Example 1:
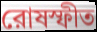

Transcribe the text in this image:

রোষস্ফীত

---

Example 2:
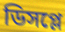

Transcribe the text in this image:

ডিসপ্লে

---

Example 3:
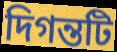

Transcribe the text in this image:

দিগন্তটি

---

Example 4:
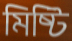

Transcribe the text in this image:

মিষ্টি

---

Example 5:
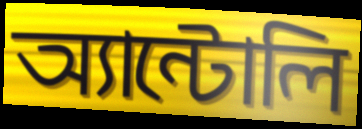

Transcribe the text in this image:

অ্যান্টোলি